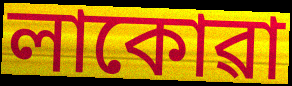
লাকোৱা